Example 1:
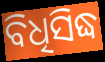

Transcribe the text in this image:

ବିଧିସିଦ୍ଧ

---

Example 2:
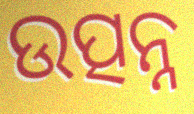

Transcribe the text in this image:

ଉତ୍ପନ୍ନ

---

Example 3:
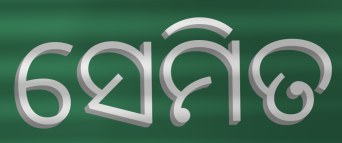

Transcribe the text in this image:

ସେମିତ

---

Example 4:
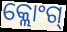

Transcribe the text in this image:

କ୍ଲୋଂଗ୍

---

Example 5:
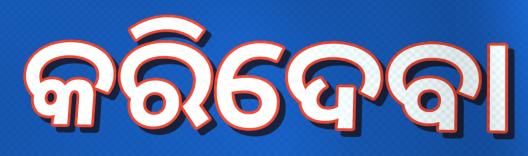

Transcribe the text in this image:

କରିଦେବା